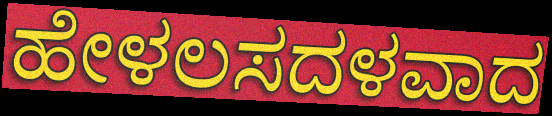
ಹೇಳಲಸದಳವಾದ